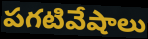
పగటివేషాలు